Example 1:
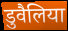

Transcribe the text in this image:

डुवैलिया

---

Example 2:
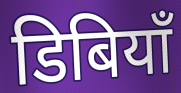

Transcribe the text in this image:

डिबियाँ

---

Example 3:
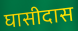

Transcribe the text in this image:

घासीदास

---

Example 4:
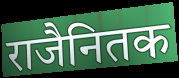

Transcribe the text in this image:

राजैनितक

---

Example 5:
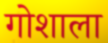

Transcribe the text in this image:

गोशाला